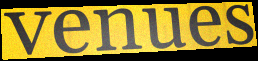
venues